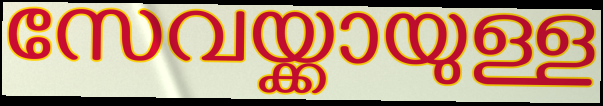
സേവയ്ക്കായുള്ള